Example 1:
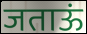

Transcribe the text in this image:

जताऊं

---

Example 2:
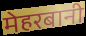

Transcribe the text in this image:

मेहरबानी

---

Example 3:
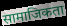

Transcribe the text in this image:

सामाजिकता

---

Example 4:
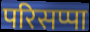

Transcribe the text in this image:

परिसप्पा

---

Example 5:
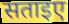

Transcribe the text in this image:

सताइए